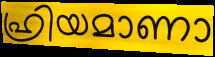
ഹ്രിയമാണാ